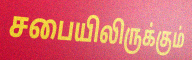
சபையிலிருக்கும்